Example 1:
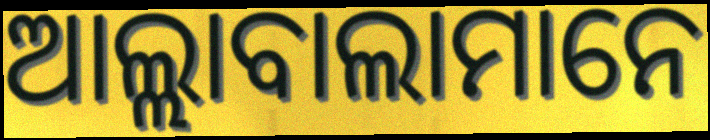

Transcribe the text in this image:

ଆଲ୍ଲାବାଲାମାନେ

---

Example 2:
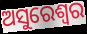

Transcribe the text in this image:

ଅସୁରେଶ୍ୱର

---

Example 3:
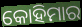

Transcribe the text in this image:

କୋହିମାର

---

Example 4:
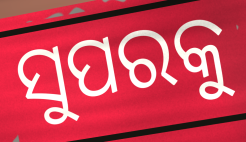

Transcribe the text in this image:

ସୁପରକୁ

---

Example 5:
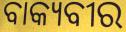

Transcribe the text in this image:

ବାକ୍ୟବୀର